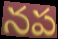
నప